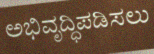
ಅಭಿವೃದ್ಧಿಪಡಿಸಲು